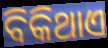
ବିକିଥାଏ